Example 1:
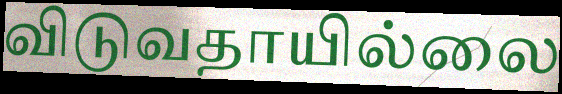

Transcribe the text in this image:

விடுவதாயில்லை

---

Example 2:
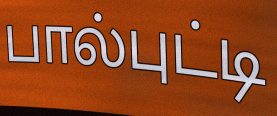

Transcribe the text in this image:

பால்புட்டி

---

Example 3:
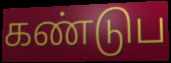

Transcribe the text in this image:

கண்டுப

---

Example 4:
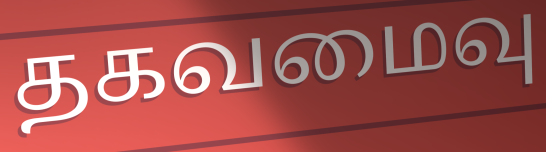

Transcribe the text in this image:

தகவமைவு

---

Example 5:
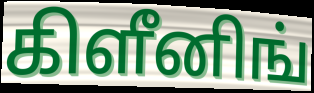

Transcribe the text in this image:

கிளீனிங்